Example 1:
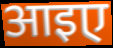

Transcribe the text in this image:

आइए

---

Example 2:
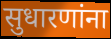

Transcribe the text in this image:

सुधारणांना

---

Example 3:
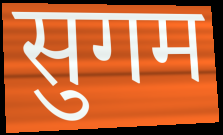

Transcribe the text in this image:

सुगम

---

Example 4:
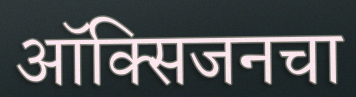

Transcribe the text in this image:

ऑक्सिजनचा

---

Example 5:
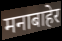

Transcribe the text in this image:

मनाबाहेर